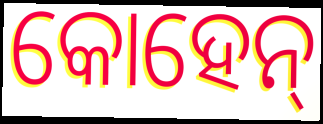
କୋହେନ୍